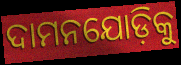
ଦାମନଯୋଡ଼ିକୁ